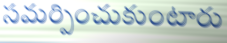
సమర్పించుకుంటారు